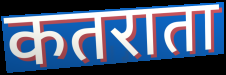
कतराता